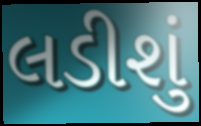
લડીશું